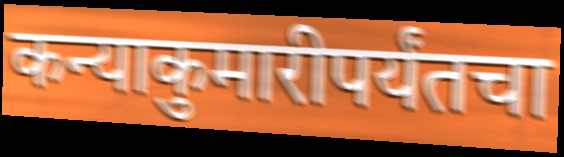
कन्याकुमारीपर्यंतचा